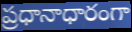
ప్రధానాధారంగా